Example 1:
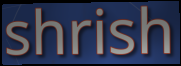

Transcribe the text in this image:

shrish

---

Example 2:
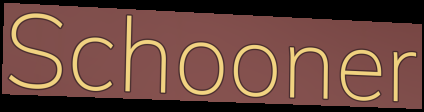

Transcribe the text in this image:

Schooner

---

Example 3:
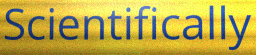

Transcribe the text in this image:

Scientifically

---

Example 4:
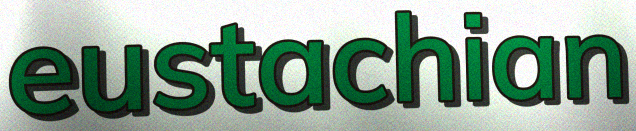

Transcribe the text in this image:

eustachian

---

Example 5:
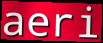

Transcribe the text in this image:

aeri